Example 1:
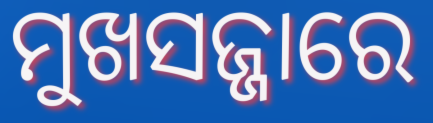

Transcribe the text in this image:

ମୁଖସଜ୍ଜାରେ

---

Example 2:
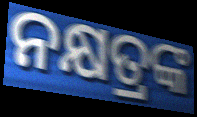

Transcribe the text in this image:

ନକ୍ଷତ୍ରଙ୍କ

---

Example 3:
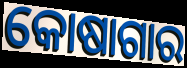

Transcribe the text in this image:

କୋଷାଗାର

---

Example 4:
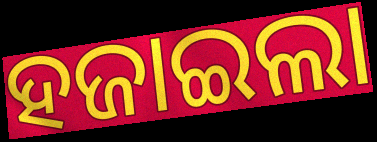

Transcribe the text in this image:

ହଜାଇଲା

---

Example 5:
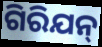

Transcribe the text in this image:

ଗିରିଯନ୍